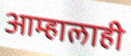
आम्हालाही